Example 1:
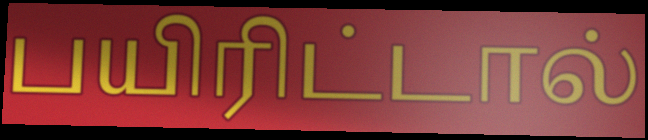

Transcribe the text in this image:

பயிரிட்டால்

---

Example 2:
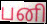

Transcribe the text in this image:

பனி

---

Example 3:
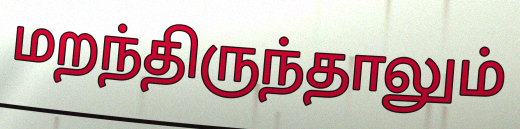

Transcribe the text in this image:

மறந்திருந்தாலும்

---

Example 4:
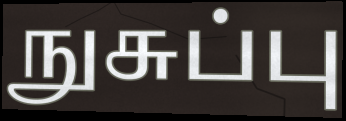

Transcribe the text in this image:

நுசுப்பு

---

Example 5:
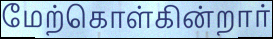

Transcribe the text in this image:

மேற்கொள்கின்றார்